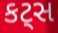
કટ્સ